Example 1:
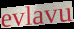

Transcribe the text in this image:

evlavu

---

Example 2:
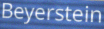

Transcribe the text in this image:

Beyerstein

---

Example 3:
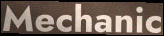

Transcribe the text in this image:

Mechanic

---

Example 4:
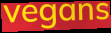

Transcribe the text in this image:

vegans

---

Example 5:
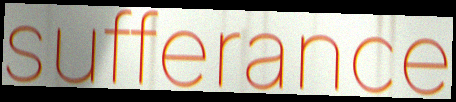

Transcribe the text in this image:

sufferance